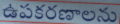
ఉపకరణాలను